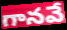
గానవే